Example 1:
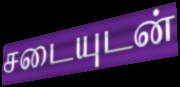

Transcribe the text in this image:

சடையுடன்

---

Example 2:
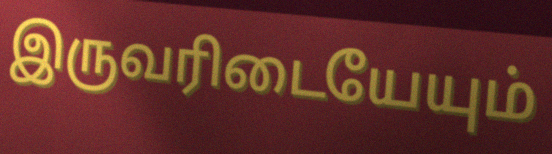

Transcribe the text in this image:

இருவரிடையேயும்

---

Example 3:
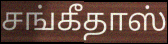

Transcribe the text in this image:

சங்கீதாஸ்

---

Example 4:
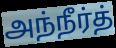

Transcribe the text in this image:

அந்நீர்த்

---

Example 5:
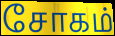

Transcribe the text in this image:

சோகம்